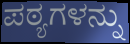
ಪಠ್ಯಗಳನ್ನು